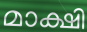
മാക്ഷി